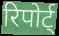
रिपोर्ट्